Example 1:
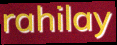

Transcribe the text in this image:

rahilay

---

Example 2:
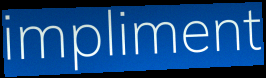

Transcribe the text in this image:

impliment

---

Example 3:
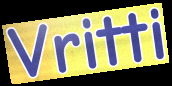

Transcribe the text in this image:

Vritti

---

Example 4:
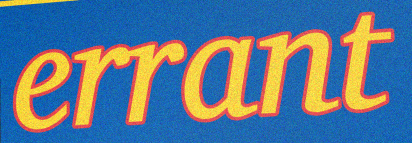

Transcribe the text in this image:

errant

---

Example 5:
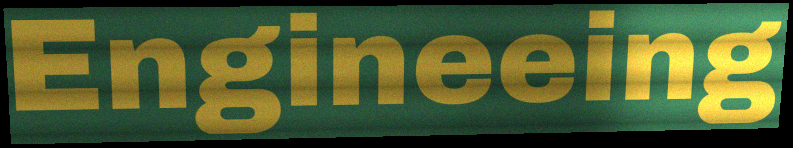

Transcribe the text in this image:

Engineeing